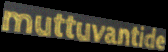
muttuvantide